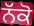
ਨੱਕੋ